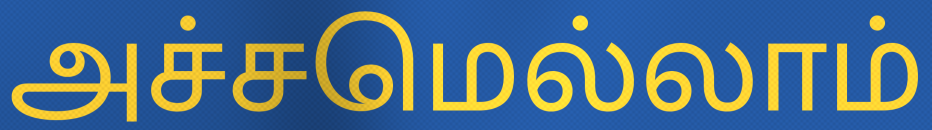
அச்சமெல்லாம்